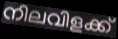
നിലവിളക്ക്